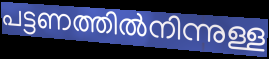
പട്ടണത്തിൽനിന്നുള്ള